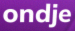
ondje